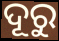
ଦୂରୁ